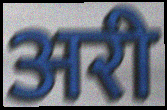
अरी